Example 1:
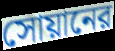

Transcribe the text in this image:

সোয়ানের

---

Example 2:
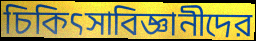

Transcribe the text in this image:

চিকিৎসাবিজ্ঞানীদের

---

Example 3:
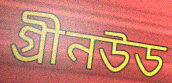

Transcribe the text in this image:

গ্রীনউড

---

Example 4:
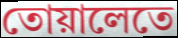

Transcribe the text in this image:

তোয়ালেতে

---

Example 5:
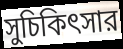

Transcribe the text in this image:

সুচিকিৎসার